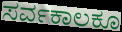
ಸರ್ವಕಾಲಕೂ